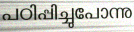
പഠിപ്പിച്ചുപോന്നു